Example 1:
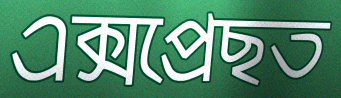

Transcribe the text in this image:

এক্সপ্ৰেছত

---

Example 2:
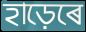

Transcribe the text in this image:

হাড়েৰে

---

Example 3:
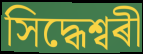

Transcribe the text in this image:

সিদ্ধেশ্বৰী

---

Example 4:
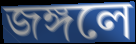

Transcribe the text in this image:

জঙ্গলে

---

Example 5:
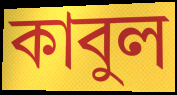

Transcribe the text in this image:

কাবুল